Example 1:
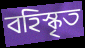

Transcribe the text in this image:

বহিস্কৃত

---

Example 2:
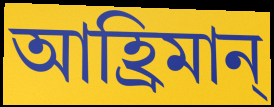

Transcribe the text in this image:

আহ্রিমান্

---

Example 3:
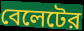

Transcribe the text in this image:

বেলেটের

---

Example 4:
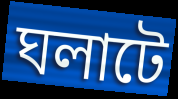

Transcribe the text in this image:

ঘলাটে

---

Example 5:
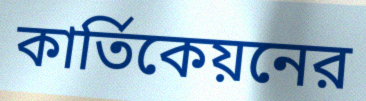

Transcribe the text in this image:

কার্তিকেয়নের